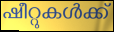
ഷീറ്റുകൾക്ക്